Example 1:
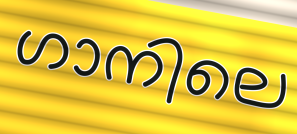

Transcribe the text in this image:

ഗാനിലെ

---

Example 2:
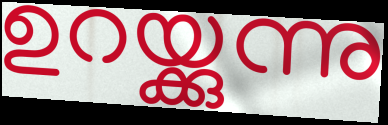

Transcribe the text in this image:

ഉറയ്ക്കുന്നു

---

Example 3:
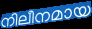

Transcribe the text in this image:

നിലീനമായ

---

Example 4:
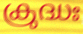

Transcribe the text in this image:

ക്രുദ്ധഃ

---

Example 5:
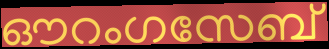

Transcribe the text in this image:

ഔറംഗസേബ്